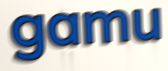
gamu